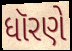
ધૉરણે